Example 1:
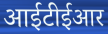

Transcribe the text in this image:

आईटीईआर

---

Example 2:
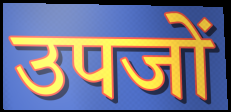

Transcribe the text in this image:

उपजों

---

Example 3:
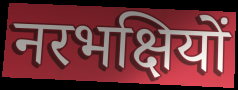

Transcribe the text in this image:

नरभक्षियों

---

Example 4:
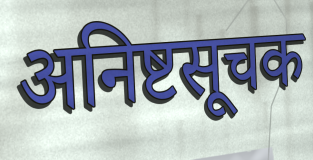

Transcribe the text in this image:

अनिष्टसूचक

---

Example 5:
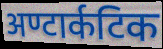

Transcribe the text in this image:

अण्टार्कटिक